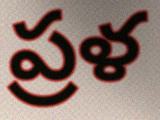
ప్రళ